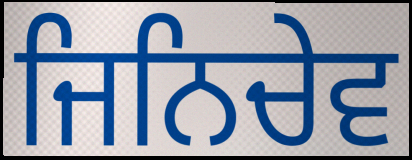
ਜਿਨਿਚੇਵ